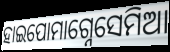
ହାଇପୋମାଗ୍ନେସେମିଆ